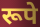
रूपे